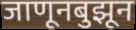
जाणूनबुझून